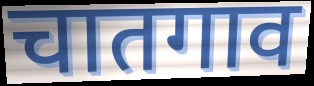
चातगाव